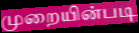
முறையின்படி